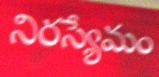
నిరస్యేమం